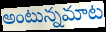
అంటున్నమాట